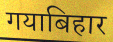
गयाबिहार